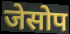
जेसोप